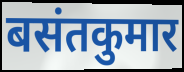
बसंतकुमार